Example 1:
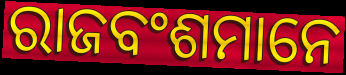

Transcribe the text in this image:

ରାଜବଂଶମାନେ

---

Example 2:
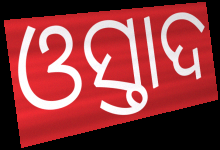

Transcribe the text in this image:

ଓସ୍ତାଦ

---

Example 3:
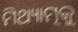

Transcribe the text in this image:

ମିଥ୍ୟାତ୍ମକୁ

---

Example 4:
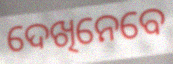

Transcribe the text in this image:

ଦେଖିନେବେ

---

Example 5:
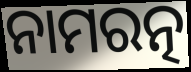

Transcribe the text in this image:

ନାମରତ୍ନ